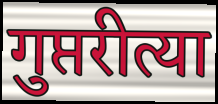
गुप्तरीत्या